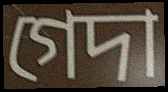
গেদা